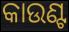
କାଉଣ୍ଟ